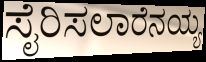
ಸೈರಿಸಲಾರೆನಯ್ಯ